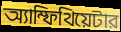
অ্যাম্ফিথিয়েটার